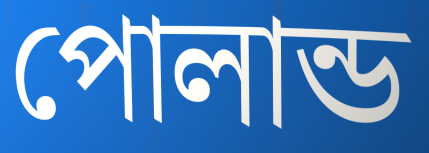
পোলান্ড